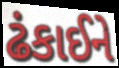
ઢંકાઈને